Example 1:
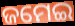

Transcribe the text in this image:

ଜମେଇ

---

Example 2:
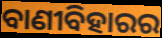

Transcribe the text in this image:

ବାଣୀବିହାରର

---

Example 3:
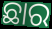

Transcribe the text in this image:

ଛାର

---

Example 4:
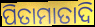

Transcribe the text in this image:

ପିତାମାତାଦି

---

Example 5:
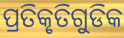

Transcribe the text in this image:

ପ୍ରତିକୃତିଗୁଡିକ